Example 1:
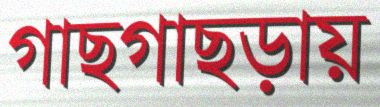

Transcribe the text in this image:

গাছগাছড়ায়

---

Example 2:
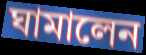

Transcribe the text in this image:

ঘামালেন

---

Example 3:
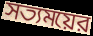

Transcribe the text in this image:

সত্যময়ের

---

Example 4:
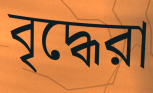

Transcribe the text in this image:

বৃদ্ধেরা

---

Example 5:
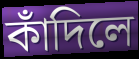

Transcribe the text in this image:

কাঁদিলে